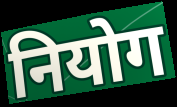
नियोग